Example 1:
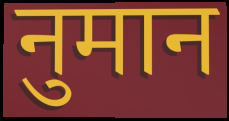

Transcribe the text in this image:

नुमान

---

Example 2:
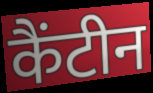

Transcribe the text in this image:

कैंटीन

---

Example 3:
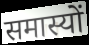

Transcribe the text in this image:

समास्यों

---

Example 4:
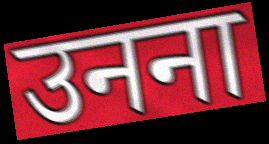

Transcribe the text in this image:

उनना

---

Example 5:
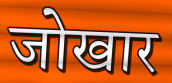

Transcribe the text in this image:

जोखार